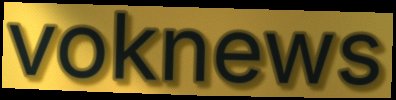
voknews